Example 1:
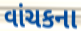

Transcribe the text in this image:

વાંચકના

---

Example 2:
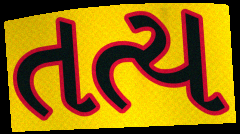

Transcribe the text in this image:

તત્ય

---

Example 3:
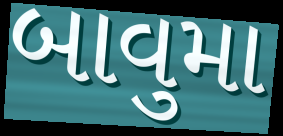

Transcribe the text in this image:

બાવુમા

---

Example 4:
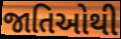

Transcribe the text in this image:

જાતિઓથી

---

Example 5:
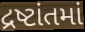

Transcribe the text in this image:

દ્રષ્ટાંતમાં